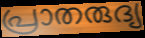
പ്രാതരുദ്യ